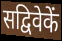
सद्विवेकें